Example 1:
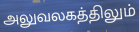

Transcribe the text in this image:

அலுவலகத்திலும்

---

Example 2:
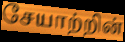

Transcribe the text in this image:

சேயாற்றின்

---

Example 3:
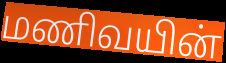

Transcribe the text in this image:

மணிவயின்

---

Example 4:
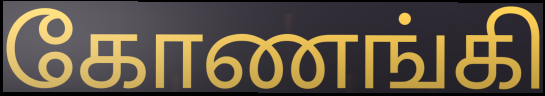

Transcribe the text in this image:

கோணங்கி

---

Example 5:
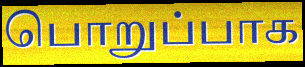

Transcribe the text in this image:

பொறுப்பாக